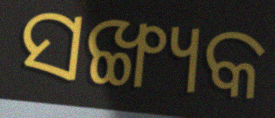
ସଙ୍ଖ୍ୟକ